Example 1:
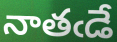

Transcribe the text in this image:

నాతఁడే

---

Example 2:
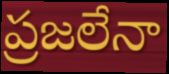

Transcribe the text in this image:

ప్రజలేనా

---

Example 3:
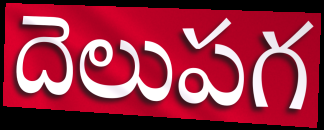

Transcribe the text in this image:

దెలుపగ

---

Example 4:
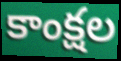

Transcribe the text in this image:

కాంక్షల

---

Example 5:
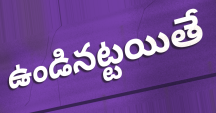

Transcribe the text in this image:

ఉండినట్టయితే